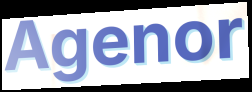
Agenor